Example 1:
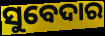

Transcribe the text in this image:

ସୁବେଦାର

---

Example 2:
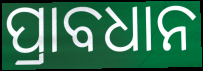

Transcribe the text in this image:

ପ୍ରାବଧାନ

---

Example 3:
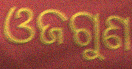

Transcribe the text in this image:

ଓଜଗୁଣ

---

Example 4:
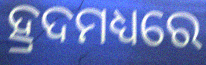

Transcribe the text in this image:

ହ୍ରଦମଧ୍ୟରେ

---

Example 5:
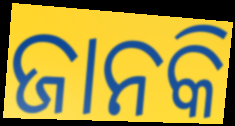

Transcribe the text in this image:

ଜାନକି